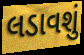
લડાવશું